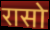
रासो